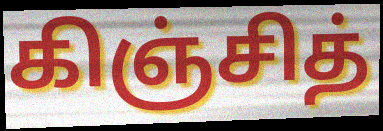
கிஞ்சித்